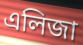
এলিজা